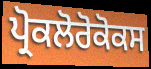
ਪ੍ਰੋਕਲੋਰੋਕੋਕਸ